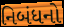
નિબંધનો